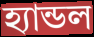
হ্যান্ডল